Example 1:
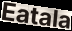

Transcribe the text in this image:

Eatala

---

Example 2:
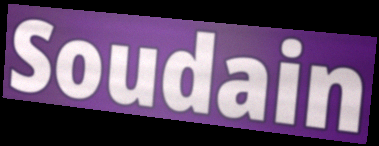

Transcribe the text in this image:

Soudain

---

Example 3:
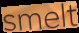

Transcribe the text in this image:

smelt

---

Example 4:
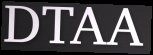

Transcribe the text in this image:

DTAA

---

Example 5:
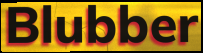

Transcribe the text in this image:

Blubber